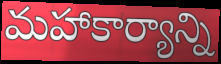
మహాకార్యాన్ని